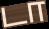
டா